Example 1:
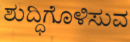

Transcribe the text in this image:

ಶುದ್ಧಿಗೊಳಿಸುವ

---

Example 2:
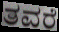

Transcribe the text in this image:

ತವರೆ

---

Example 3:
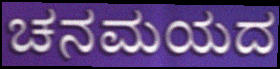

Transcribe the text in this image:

ಚನಮಯದ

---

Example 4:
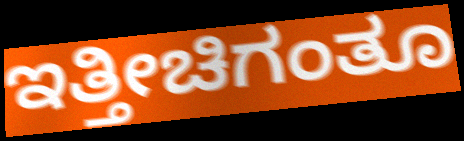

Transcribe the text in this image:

ಇತ್ತೀಚಿಗಂತೂ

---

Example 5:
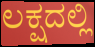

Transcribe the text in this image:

ಲಕ್ಷದಲ್ಲಿ